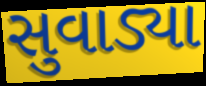
સુવાડ્યા